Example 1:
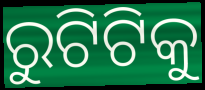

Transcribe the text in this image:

ରୁଟିଟିକୁ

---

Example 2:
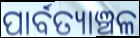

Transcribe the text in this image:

ପାର୍ବତ୍ୟାଞ୍ଚଳ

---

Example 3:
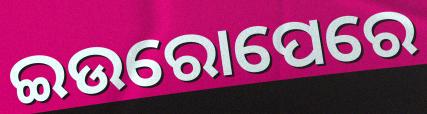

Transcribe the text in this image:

ଇଉରୋପେରେ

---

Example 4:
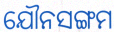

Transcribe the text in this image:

ଯୌନସଙ୍ଗମ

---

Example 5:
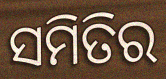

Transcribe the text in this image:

ସମିତିର